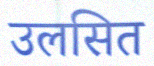
उलसित